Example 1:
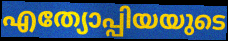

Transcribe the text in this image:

എത്യോപ്പിയയുടെ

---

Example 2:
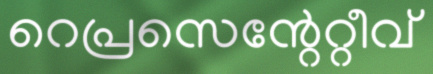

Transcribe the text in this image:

റെപ്രസെന്റേറ്റീവ്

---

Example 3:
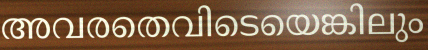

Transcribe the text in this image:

അവരതെവിടെയെങ്കിലും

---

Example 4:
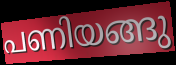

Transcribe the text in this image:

പണിയങ്ങു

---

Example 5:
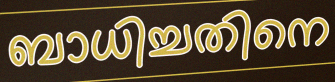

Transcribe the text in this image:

ബാധിച്ചതിനെ